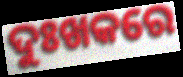
ଦୁଃଖକରେ